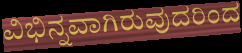
ವಿಭಿನ್ನವಾಗಿರುವುದರಿಂದ